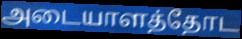
அடையாளத்தோட